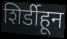
शिर्डीहून